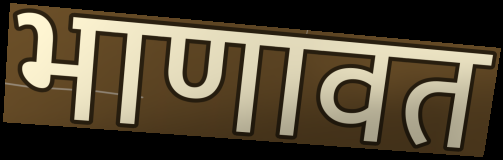
भाणावत